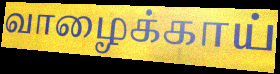
வாழைக்காய்